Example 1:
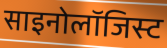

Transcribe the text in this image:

साइनोलॉजिस्ट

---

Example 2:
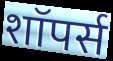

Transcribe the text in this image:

शॉपर्स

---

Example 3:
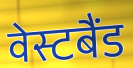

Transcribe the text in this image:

वेस्टबैंड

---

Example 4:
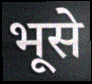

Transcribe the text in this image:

भूसे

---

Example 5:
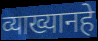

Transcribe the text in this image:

व्याख्यानहे